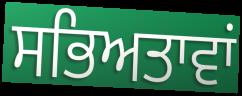
ਸਭਿਅਤਾਵਾਂ